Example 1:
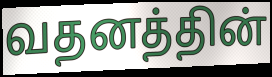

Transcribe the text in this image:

வதனத்தின்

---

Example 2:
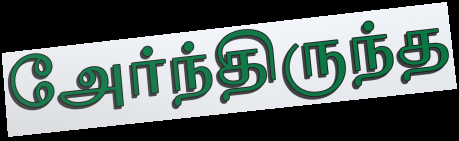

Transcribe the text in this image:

அேர்ந்திருந்த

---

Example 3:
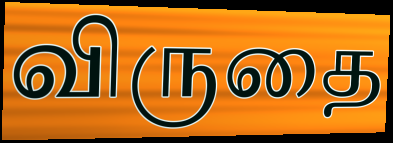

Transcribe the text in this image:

விருதை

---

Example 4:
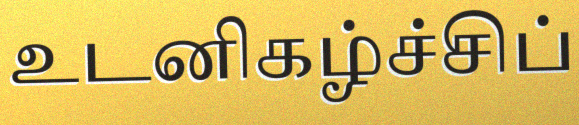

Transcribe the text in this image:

உடனிகழ்ச்சிப்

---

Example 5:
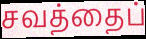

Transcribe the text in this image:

சவத்தைப்